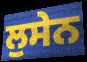
ਲੁਸੇਨ